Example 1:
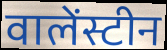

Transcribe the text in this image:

वालेंस्टीन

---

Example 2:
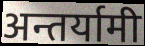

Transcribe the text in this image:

अन्तर्यामी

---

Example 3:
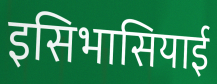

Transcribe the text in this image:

इसिभासियाई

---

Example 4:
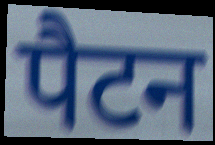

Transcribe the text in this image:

पैटन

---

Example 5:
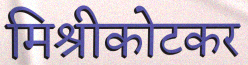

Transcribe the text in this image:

मिश्रीकोटकर